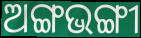
ଅଙ୍ଗଭଙ୍ଗୀ